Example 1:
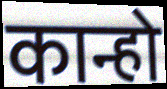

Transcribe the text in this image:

कान्हो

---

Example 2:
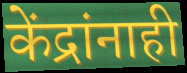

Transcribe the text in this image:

केंद्रांनाही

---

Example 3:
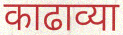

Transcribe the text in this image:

काढाव्या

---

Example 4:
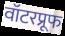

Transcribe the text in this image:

वॉटरप्रूफ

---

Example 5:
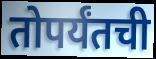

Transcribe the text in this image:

तोपर्यंतची